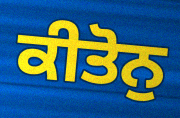
ਕੀਤੋਨੁ